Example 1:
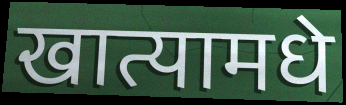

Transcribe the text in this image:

खात्यामधे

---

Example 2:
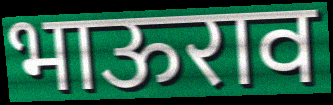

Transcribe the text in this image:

भाऊराव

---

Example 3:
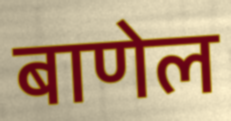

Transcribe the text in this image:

बाणेल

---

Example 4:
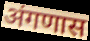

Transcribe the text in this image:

अंगणास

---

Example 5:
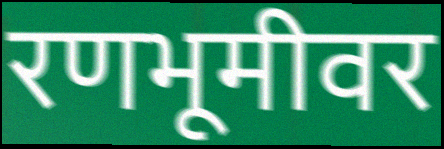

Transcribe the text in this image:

रणभूमीवर